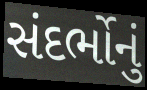
સંદર્ભોનું